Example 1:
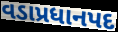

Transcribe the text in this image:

વડાપ્રધાનપદ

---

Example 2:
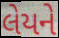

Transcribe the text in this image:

લેયને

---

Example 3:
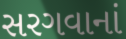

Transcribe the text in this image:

સરગવાનાં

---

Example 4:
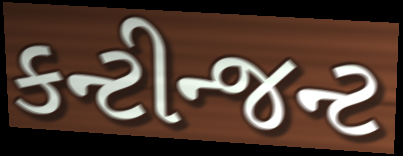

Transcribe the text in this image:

કન્ટીન્જન્ટ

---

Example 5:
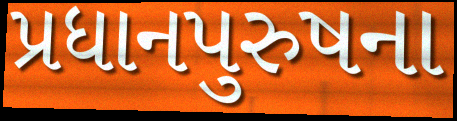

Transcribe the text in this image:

પ્રધાનપુરુષના